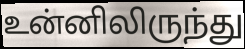
உன்னிலிருந்து